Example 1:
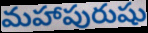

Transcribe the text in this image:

మహాపురుషు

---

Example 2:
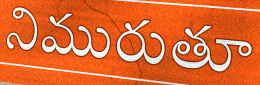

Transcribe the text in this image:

నిమురుతూ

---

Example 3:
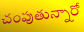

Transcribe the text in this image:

చంపుతున్నారో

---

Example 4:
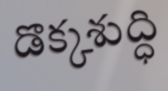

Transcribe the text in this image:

డొక్కశుద్ధి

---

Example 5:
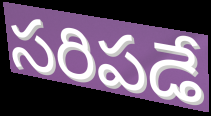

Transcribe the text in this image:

సరిపడే